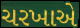
ચરખાએ